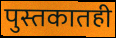
पुस्तकातही